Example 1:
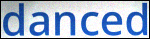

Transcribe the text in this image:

danced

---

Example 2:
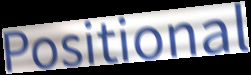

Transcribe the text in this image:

Positional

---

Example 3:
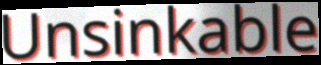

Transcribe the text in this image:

Unsinkable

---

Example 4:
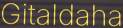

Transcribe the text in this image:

Gitaldaha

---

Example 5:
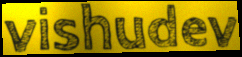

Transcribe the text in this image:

vishudev